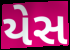
યેસ